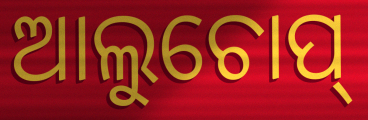
ଆଲୁଚୋପ୍